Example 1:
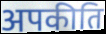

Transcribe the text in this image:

अपकीति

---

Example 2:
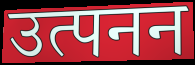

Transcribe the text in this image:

उत्पनन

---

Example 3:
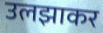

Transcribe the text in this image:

उलझाकर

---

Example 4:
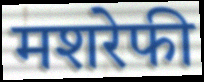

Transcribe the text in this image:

मशरेफी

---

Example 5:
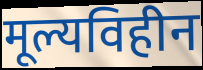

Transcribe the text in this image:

मूल्यविहीन